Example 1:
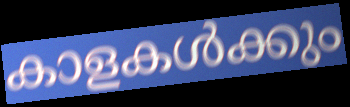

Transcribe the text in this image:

കാളകൾക്കും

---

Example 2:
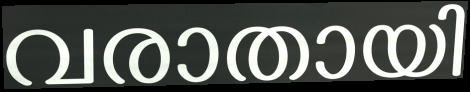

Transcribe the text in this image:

വരാതായി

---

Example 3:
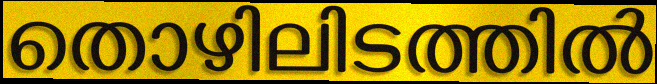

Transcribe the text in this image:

തൊഴിലിടത്തിൽ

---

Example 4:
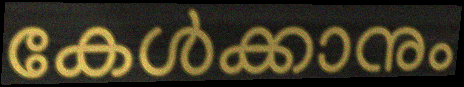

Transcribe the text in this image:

കേൾക്കാനും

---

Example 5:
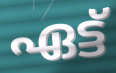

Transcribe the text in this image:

ഏട്ട്